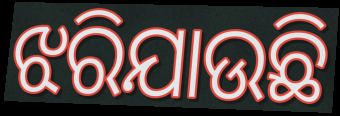
ଝରିଯାଉଛି